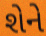
શેને